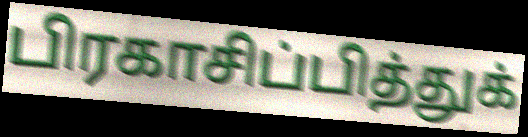
பிரகாசிப்பித்துக்